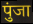
पुंजा